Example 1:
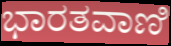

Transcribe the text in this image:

ಭಾರತವಾಣಿ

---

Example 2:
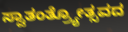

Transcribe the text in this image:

ಸ್ವಾತಂತ್ರ್ಯೋತ್ಸವದ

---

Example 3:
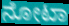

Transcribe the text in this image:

ನೋಟಾ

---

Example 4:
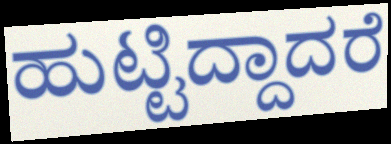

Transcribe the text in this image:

ಹುಟ್ಟಿದ್ದಾದರೆ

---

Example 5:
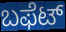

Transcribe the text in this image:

ಬಫೆಟ್